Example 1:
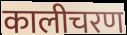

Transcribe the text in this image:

कालीचरण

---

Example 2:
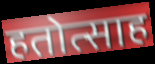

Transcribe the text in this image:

हतोत्साह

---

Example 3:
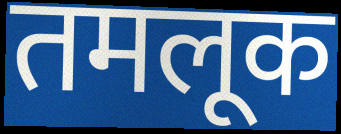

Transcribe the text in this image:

तमलूक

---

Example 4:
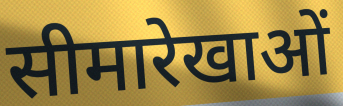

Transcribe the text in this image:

सीमारेखाओं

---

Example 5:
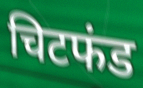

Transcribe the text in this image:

चिटफंड